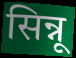
सिन्नू